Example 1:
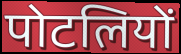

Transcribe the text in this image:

पोटलियों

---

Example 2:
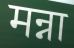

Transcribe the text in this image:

मन्ना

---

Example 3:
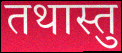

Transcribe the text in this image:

तथास्तु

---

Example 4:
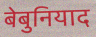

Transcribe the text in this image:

बेबुनियाद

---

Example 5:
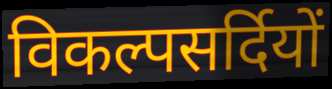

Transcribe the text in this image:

विकल्पसर्दियों